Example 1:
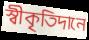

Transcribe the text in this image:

স্বীকৃতিদানে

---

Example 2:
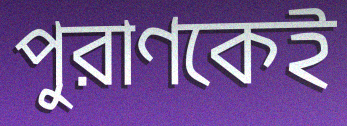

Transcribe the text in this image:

পুরাণকেই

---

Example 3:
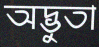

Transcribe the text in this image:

অদ্ভুতা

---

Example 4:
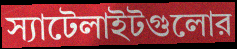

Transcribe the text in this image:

স্যাটেলাইটগুলোর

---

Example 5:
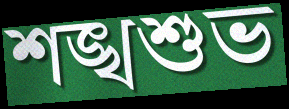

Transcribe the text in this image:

শঙ্খশুভ